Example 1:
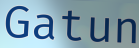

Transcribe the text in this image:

Gatun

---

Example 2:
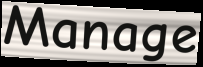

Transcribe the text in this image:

Manage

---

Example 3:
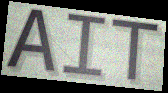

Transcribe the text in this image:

AIT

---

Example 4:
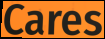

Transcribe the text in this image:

Cares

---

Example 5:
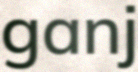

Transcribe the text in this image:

ganj